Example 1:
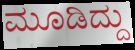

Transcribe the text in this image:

ಮೂಡಿದ್ದು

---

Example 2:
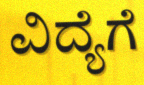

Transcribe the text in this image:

ವಿದ್ಯೆಗೆ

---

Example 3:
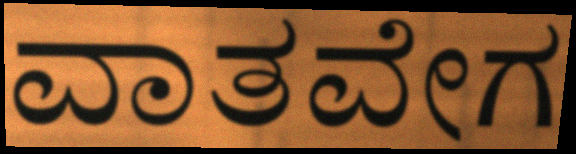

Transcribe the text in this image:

ವಾತವೇಗ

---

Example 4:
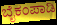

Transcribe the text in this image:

ಬೈಕಂಪಾಡಿ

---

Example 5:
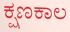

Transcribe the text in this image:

ಕ್ಷಣಕಾಲ